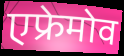
एफ्रेमोव